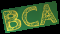
BCA